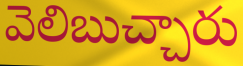
వెలిబుచ్చారు